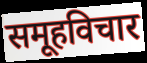
समूहविचार